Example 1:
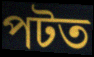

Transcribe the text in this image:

পটত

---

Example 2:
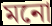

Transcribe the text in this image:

মনো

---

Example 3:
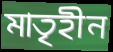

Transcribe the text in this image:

মাতৃহীন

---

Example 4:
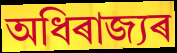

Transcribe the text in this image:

অধিৰাজ্যৰ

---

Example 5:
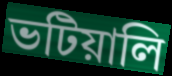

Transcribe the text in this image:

ভটিয়ালি